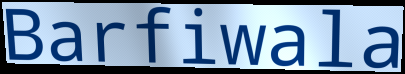
Barfiwala